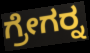
ಗ್ರೇಗರ್‍ನ